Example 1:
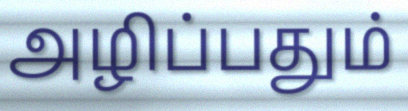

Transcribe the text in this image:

அழிப்பதும்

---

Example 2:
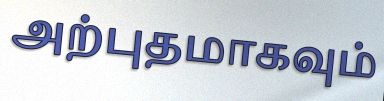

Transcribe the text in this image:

அற்புதமாகவும்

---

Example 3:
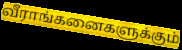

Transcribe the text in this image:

வீராங்கனைகளுக்கும்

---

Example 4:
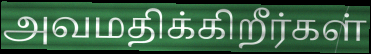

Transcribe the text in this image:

அவமதிக்கிறீர்கள்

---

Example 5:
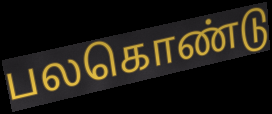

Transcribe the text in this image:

பலகொண்டு